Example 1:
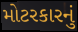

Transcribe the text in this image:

મોટરકારનું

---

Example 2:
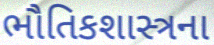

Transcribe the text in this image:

ભૌતિકશાસ્ત્રના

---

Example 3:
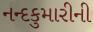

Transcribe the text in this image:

નન્દકુમારીની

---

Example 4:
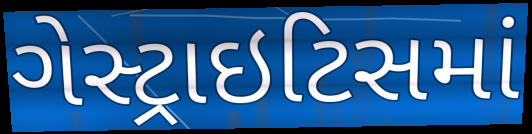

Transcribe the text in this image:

ગેસ્ટ્રાઇટિસમાં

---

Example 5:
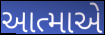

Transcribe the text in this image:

આત્માએ